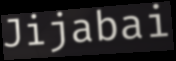
Jijabai